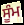
ਸੂੰਮ